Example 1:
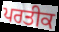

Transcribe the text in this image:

ਪਰਤੀਕ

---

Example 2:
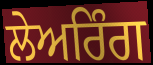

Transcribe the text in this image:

ਲੇਅਰਿੰਗ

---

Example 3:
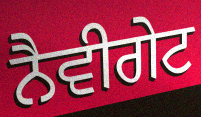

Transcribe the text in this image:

ਨੈਵੀਗੇਟ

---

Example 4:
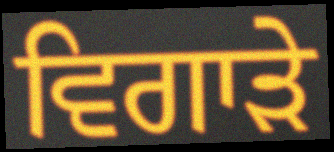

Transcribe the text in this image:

ਵਿਗਾੜੇ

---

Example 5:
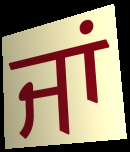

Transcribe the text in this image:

ਜਾਂ